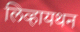
लिव्हायथन